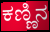
ಕಣ್ಣಿನ